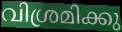
വിശ്രമിക്കു